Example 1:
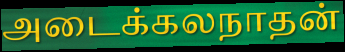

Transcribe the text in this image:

அடைக்கலநாதன்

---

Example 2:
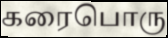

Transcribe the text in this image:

கரைபொரு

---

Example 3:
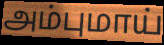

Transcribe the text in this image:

அம்புமாய்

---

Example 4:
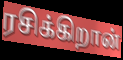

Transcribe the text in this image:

ரசிக்கிறான்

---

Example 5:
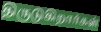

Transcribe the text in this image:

திருடுகிறார்கள்